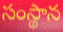
సంస్థాన